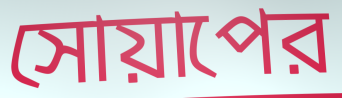
সোয়াপের